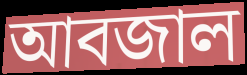
আবজাল